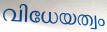
വിധേയത്വം